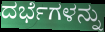
ದರ್ಭೆಗಳನ್ನು